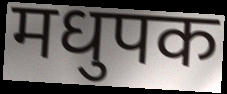
मधुपक